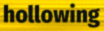
hollowing